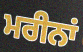
ਮਰੀਨਾਂ